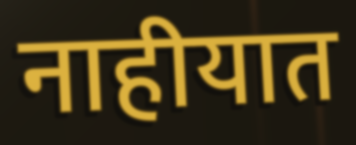
नाहीयात